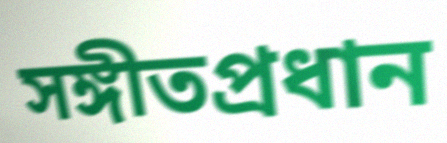
সঙ্গীতপ্রধান